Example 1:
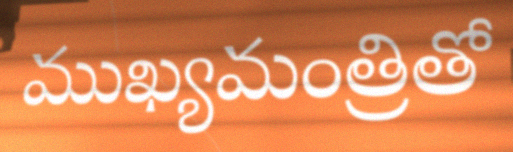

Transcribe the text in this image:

ముఖ్యమంత్రితో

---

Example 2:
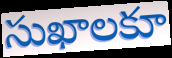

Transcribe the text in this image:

సుఖాలకూ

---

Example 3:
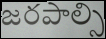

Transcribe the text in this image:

జరపాల్సి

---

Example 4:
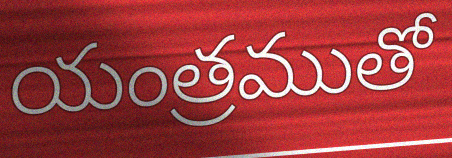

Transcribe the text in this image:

యంత్రముతో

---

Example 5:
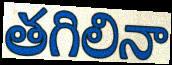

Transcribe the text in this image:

తగిలినా